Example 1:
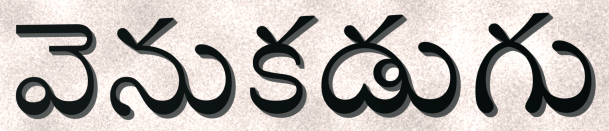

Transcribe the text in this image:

వెనుకడుగు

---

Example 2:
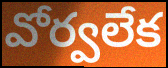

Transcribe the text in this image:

వోర్వలేక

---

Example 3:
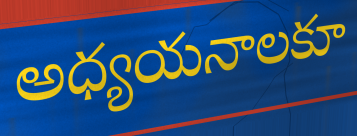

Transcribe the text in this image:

అధ్యయనాలకూ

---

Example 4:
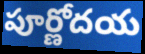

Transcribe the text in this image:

పూర్ణోదయ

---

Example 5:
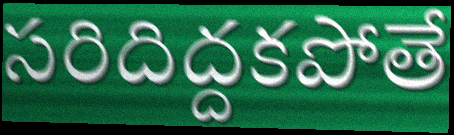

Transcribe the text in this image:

సరిదిద్దకపోతే